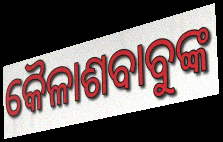
କୈଳାଶବାବୁଙ୍କ